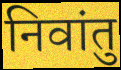
निवांतु